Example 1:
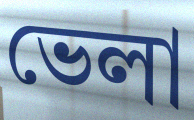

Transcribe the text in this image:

ভেলা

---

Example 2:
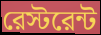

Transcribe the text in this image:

রেস্টরেন্ট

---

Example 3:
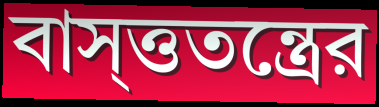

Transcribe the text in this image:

বাস্ত্ততন্ত্রের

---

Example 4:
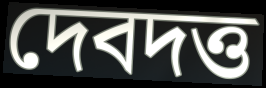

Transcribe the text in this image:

দেবদত্ত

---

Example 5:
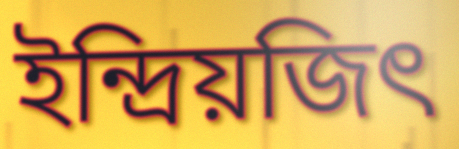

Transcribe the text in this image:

ইন্দ্রিয়জিৎ